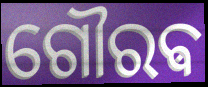
ଗୌରଵ